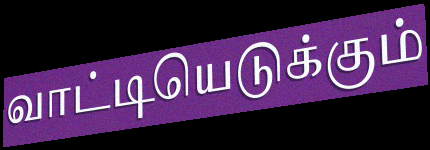
வாட்டியெடுக்கும்